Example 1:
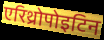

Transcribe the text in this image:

एरिथ्रोपोइटिन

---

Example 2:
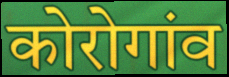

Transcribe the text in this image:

कोरोगांव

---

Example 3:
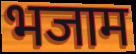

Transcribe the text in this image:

भजाम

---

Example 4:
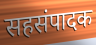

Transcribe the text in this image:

सहसंपादक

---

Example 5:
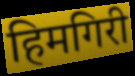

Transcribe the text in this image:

हिमगिरी